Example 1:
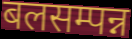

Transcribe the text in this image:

बलसम्पन्न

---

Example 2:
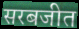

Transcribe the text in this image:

सरबजीत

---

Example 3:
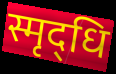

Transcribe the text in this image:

स्मृद्धि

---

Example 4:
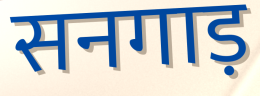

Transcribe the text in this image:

सनगाड़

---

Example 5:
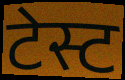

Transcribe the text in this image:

टेस्‍ट